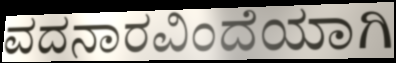
ವದನಾರವಿಂದೆಯಾಗಿ